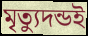
মৃত্যুদন্ডই